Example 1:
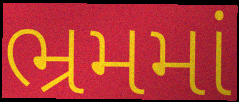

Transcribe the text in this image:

ભ્રમમાં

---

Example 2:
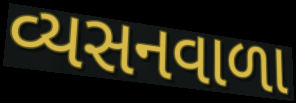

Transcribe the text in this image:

વ્યસનવાળા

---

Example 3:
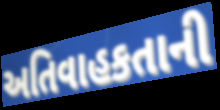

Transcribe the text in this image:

અતિવાહકતાની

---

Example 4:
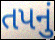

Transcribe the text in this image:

તપનું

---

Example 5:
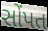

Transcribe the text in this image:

સોંપત